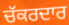
ਚੱਕਰਦਾਰ